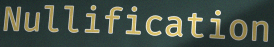
Nullification